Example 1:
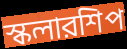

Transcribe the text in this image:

স্কলারশিপ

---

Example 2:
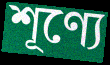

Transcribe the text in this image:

শূণ্যে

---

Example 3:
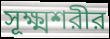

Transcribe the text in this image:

সূক্ষ্মশরীর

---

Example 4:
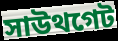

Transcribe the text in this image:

সাউথগেট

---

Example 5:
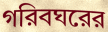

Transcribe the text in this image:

গরিবঘরের